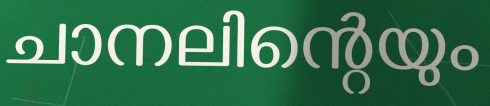
ചാനലിന്റെയും